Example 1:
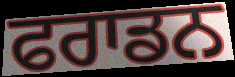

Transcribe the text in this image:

ਫਰਾਡਨ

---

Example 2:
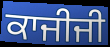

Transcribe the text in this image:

ਕਾਜੀਜੀ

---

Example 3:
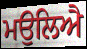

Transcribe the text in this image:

ਮਉਲਿਐ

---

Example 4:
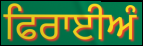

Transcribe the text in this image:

ਫਿਰਾਈਅੰ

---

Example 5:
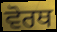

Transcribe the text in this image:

ਵੋਰਥ